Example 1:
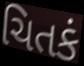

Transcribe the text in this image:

ચિતકં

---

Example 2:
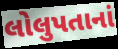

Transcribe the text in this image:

લોલુપતાનાં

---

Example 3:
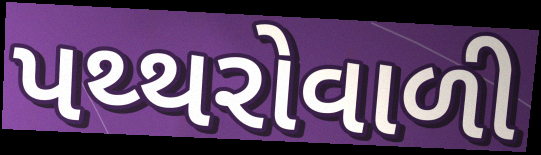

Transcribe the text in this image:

પથ્થરોવાળી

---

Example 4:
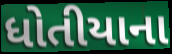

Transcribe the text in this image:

ધોતીયાના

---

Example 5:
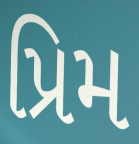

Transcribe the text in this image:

પ્રિમ